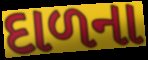
દાળના